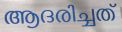
ആദരിച്ചത്